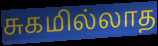
சுகமில்லாத